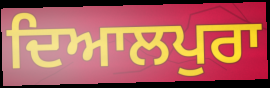
ਦਿਆਲਪੁਰਾ